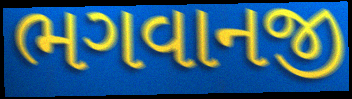
ભગવાનજી